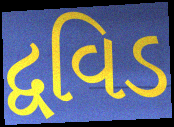
દ્વવિડ